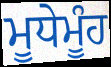
ਮੂਧੇਮੂੰਹ